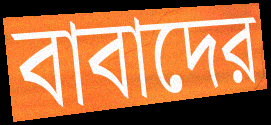
বাবাদের